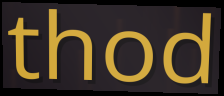
thod